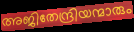
അജിതേന്ദ്രിയന്മാരും